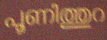
പൂണിത്തുറ